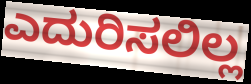
ಎದುರಿಸಲಿಲ್ಲ